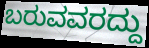
ಬರುವವರದ್ದು